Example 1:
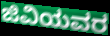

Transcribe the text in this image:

ಜಿವಿಯವರ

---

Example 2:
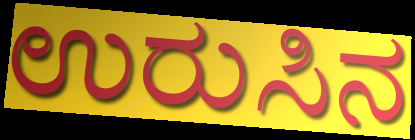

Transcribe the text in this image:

ಉರುಸಿನ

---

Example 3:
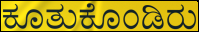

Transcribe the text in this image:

ಕೂತುಕೊಂಡಿರು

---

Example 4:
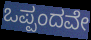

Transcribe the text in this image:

ಒಪ್ಪಂದವೇ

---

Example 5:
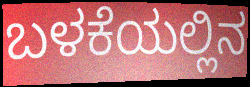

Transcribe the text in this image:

ಬಳಕೆಯಲ್ಲಿನ